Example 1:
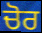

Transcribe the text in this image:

ਚੋਰ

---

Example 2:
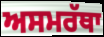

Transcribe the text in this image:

ਅਸਮਰੱਥਾ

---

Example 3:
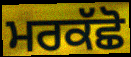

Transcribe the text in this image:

ਮਰਕੱਛੋ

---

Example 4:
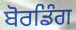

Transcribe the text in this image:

ਬੋਰਡਿੰਗ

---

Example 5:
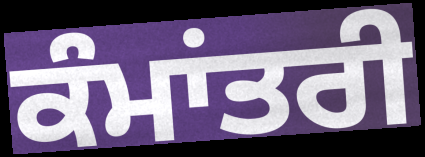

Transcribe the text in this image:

ਕੰਮਾਂਤਰੀ